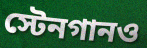
স্টেনগানও